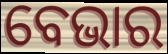
ବେଭାର